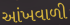
આંખવાળી